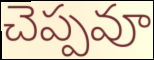
చెప్పవూ